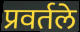
प्रवर्तले